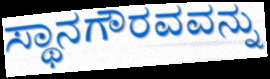
ಸ್ಥಾನಗೌರವವನ್ನು